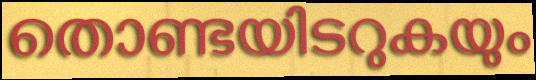
തൊണ്ടയിടറുകയും